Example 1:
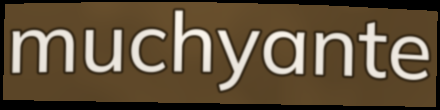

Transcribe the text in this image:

muchyante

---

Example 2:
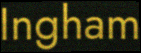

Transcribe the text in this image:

Ingham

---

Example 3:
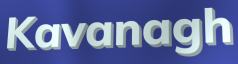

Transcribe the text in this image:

Kavanagh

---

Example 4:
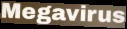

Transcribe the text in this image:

Megavirus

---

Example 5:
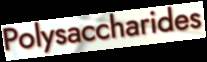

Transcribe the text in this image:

Polysaccharides